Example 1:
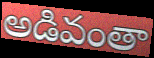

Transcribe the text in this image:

అడివంతా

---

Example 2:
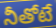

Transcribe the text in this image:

నీతోటే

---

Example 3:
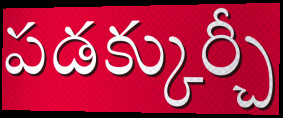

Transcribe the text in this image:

పడక్కుర్చీ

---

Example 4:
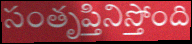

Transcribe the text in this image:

సంతృప్తినిస్తోంది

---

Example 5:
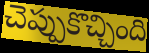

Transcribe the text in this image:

చెప్పుకొచ్చింది